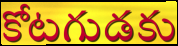
కోటగుడకు